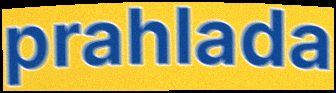
prahlada